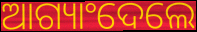
ଆଗ୍ୟାଂଦେଲେ